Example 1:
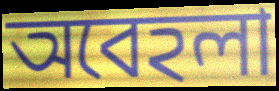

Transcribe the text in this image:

অবেহলা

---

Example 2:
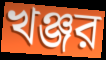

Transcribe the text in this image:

খঞ্জর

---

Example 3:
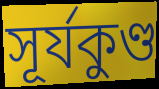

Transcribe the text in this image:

সূর্যকুণ্ড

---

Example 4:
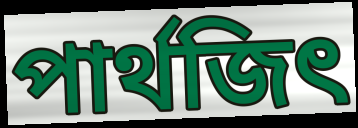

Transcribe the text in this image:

পার্থজিৎ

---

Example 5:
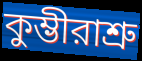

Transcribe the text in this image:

কুম্ভীরাশ্রু